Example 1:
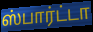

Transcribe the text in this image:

ஸ்பார்ட்டா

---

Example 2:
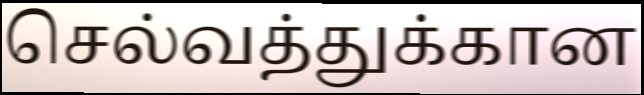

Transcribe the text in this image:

செல்வத்துக்கான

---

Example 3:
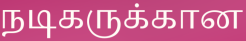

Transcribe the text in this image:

நடிகருக்கான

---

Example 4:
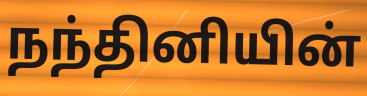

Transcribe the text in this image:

நந்தினியின்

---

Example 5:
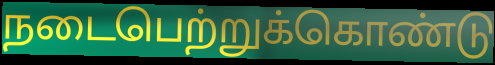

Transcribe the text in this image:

நடைபெற்றுக்கொண்டு